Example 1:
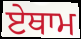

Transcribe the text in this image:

ਏਥਾਮ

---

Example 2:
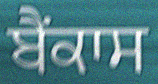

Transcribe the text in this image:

ਬੈਂਕਾਸ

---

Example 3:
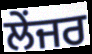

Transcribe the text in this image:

ਲੇਂਜਰ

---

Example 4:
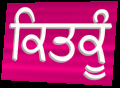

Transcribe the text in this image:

ਕਿਤਕੂੰ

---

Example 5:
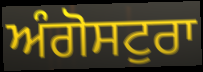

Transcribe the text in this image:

ਅੰਗੋਸਟੁਰਾ